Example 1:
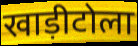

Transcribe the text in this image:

खाड़ीटोला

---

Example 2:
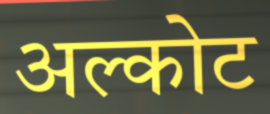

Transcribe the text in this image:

अल्कोट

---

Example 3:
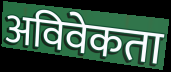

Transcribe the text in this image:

अविवेकता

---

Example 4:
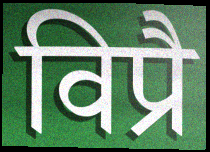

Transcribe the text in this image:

विप्रै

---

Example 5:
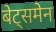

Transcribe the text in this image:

बेट्समेन